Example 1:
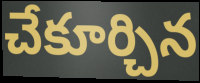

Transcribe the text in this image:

చేకూర్చిన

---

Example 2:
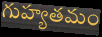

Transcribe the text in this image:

గుహ్యతమం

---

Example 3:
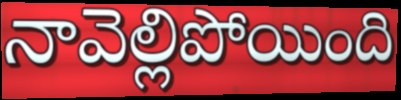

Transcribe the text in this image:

నావెల్లిపోయింది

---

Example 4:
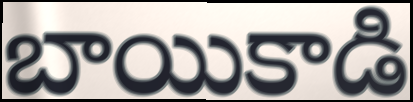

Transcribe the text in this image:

బాయికాడి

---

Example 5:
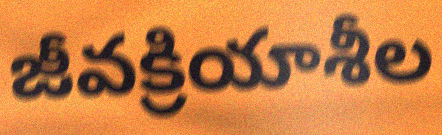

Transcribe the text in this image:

జీవక్రియాశీల